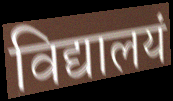
विद्यालयं